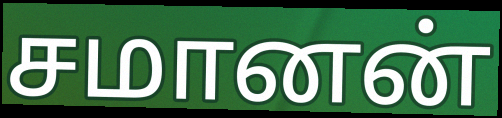
சமானன்